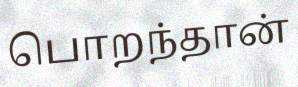
பொறந்தான்